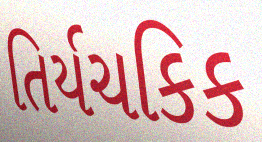
તિર્યચકિક